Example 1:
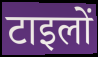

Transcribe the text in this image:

टाइलों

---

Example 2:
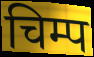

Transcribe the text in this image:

चिम्प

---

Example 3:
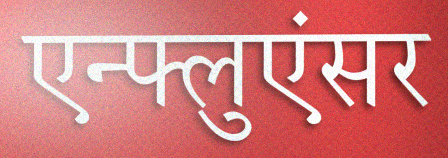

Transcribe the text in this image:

एन्फ्लुएंसर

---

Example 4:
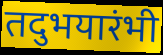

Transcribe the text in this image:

तदुभयारंभी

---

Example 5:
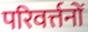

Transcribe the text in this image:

परिवर्त्तनों